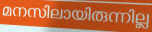
മനസിലായിരുന്നില്ല